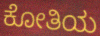
ಕೋತಿಯ